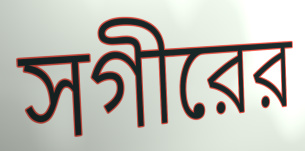
সগীরের